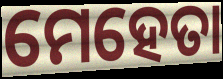
ମେହେତା